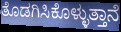
ತೊಡಗಿಸಿಕೊಳ್ಳುತ್ತಾನೆ